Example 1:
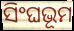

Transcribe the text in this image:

ସିଂଘଭୂମ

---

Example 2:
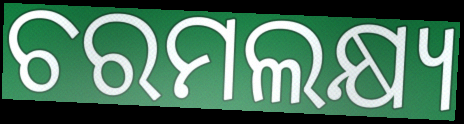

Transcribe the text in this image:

ଚରମଲକ୍ଷ୍ୟ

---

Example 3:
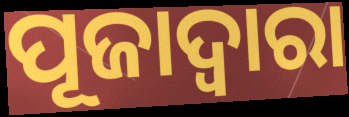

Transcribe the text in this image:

ପୂଜାଦ୍ଵାରା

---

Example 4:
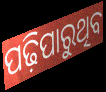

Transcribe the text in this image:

ପଢ଼ିପାରୁଥିବ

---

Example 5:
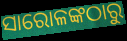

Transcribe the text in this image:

ସାରୋଳଙ୍କଠାରୁ